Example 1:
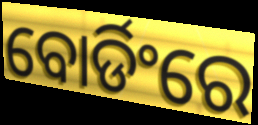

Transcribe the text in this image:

ବୋର୍ଡିଂରେ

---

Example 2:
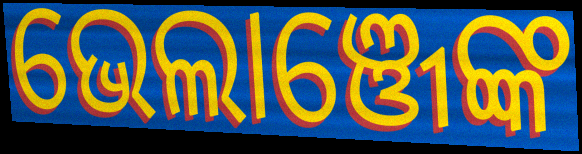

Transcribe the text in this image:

ଭେଲାଞ୍ଜେଙ୍କ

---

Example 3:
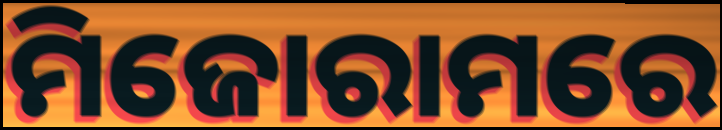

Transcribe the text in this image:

ମିଜୋରାମରେ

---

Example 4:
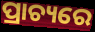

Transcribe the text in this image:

ପ୍ରାଚ୍ୟରେ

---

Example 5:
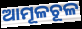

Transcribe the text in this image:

ଆମୂଳଚୂଳ